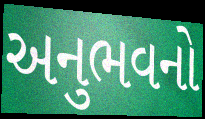
અનુભવનો